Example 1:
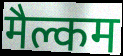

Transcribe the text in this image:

मैल्कम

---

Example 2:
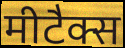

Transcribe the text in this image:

मीटैक्स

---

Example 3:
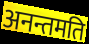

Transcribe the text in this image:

अनन्तमति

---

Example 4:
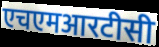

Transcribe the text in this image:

एचएमआरटीसी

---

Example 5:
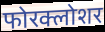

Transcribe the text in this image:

फोरक्लोशर